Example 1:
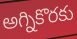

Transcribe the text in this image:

అగ్నికొరకు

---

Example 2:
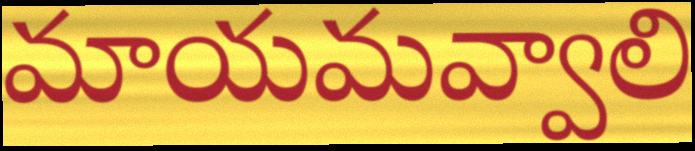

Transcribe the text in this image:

మాయమవ్వాలి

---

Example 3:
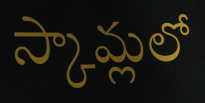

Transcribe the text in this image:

స్కామ్లలో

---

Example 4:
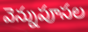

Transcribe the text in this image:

వెన్నుపూసల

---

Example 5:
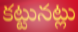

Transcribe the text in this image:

కట్టునట్లు